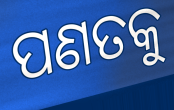
ପଣତକୁ